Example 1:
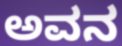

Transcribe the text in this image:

ಅವನ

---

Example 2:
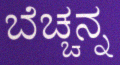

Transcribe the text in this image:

ಬೆಚ್ಚನ್ನ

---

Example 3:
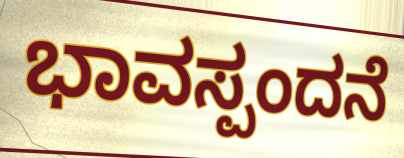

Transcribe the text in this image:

ಭಾವಸ್ಪಂದನೆ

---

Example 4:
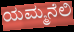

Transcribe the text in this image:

ಯಮ್ಮನೆಲಿ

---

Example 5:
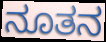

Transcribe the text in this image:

ನೂತನ